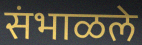
संभाळले